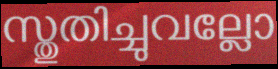
സ്തുതിച്ചുവല്ലോ